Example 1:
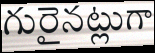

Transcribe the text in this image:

గురైనట్లుగా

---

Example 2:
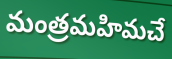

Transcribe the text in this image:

మంత్రమహిమచే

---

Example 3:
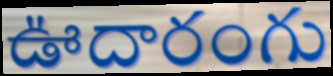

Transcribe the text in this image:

ఊదారంగు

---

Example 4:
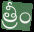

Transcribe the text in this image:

త్రీం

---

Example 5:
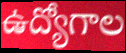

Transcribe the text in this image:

ఉద్యోగాల